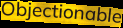
Objectionable